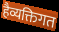
हैव्यक्तिगत